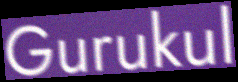
Gurukul